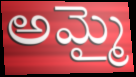
అమ్మై